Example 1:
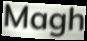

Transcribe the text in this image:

Magh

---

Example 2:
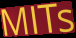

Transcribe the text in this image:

MITs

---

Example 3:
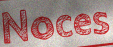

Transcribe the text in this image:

Noces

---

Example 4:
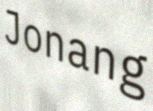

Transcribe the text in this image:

Jonang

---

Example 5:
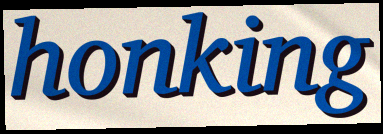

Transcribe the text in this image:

honking